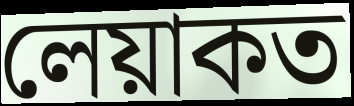
লেয়াকত